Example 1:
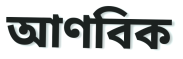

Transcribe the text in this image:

আণবিক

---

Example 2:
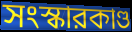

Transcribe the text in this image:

সংস্কারকাণ্ড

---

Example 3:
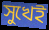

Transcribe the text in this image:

সুখেই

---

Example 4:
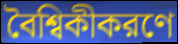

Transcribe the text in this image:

বৈশ্বিকীকরণে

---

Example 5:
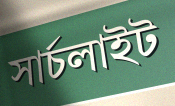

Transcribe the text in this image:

সার্চলাইট